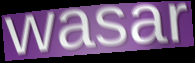
wasar